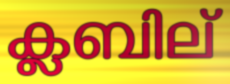
ക്ലബില്